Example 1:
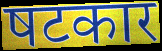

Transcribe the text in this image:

षटकार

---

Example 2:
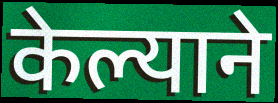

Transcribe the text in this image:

केल्याने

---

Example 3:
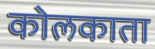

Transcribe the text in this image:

कोलकाता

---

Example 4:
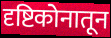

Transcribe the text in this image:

दृष्टिकोनातून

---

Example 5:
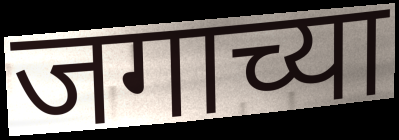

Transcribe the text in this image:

जगाच्या